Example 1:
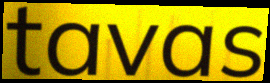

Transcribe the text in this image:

tavas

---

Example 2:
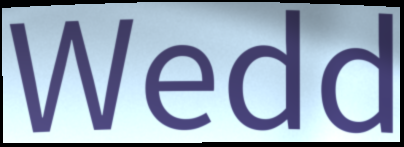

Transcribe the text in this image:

Wedd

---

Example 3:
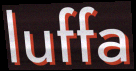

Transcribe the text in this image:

luffa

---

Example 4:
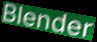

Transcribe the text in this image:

Blender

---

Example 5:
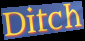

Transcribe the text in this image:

Ditch